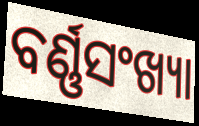
ବର୍ଣ୍ଣସଂଖ୍ୟା